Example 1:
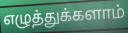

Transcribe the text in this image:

எழுத்துக்களாம்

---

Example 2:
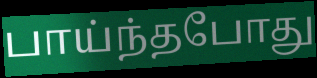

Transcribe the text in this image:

பாய்ந்தபோது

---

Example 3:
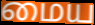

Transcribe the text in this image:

மைய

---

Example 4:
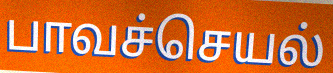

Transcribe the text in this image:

பாவச்செயல்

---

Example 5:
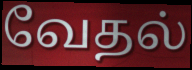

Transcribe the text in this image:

வேதல்